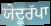
ਯੇਦੂਰੱਪਾ